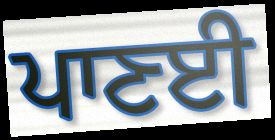
ਪਾਣਈ